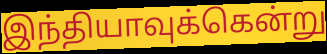
இந்தியாவுக்கென்று